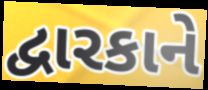
દ્વારકાને